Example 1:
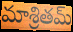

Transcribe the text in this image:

మాశ్రితమ్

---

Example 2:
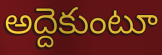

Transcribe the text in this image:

అద్దెకుంటూ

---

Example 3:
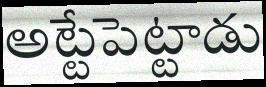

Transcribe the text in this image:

అట్టేపెట్టాడు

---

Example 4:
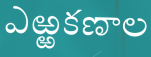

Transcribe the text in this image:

ఎఱ్ఱకణాల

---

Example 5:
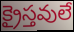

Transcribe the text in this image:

క్రైస్తవులే